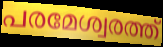
പരമേശ്വരത്ത്